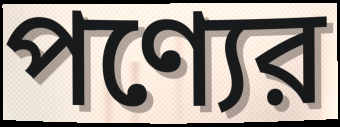
পণ্যের